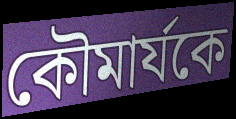
কৌমার্যকে